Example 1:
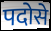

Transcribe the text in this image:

पदोसे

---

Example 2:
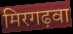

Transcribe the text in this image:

मिरगढ़वा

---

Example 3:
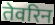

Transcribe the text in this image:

तेवरिन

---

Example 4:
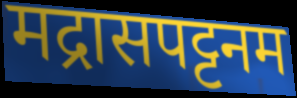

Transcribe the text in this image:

मद्रासपट्टनम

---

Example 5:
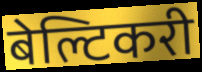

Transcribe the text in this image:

बेल्टिकरी